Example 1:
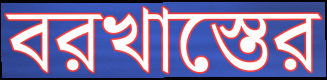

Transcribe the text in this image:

বরখাস্তের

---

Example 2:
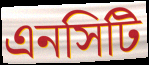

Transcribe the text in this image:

এনসিটি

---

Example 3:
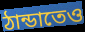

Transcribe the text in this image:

ঠান্ডাতেও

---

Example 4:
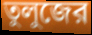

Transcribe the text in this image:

তুলুজের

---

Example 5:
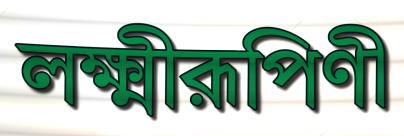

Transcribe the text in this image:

লক্ষ্মীরূপিণী